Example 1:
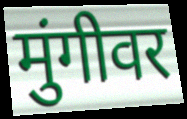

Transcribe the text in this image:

मुंगीवर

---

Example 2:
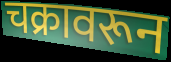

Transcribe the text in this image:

चक्रावरून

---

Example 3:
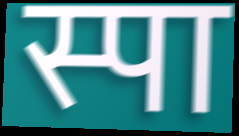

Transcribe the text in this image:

स्पा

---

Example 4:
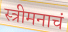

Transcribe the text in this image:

स्त्रीमनाचं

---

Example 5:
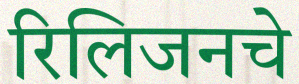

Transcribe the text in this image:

रिलिजनचे